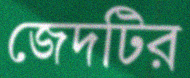
জেদটির